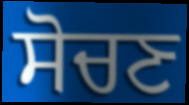
ਸੋਚਣ